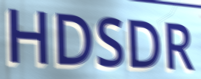
HDSDR